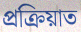
প্ৰক্ৰিয়াত